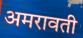
अमरावती